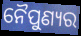
ନୈପୁଣ୍ୟର